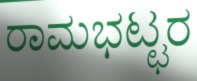
ರಾಮಭಟ್ಟರ